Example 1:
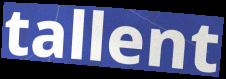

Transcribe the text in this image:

tallent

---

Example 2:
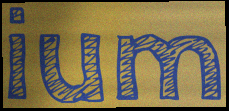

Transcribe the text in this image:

ium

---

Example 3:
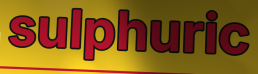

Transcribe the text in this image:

sulphuric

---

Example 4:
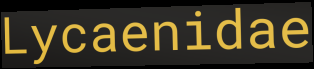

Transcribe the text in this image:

Lycaenidae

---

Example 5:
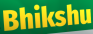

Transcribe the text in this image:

Bhikshu